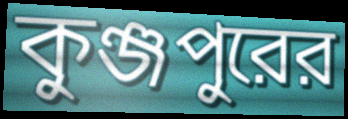
কুঞ্জপুরের